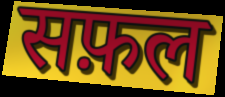
सफ़ल